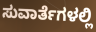
ಸುವಾರ್ತೆಗಳಲ್ಲಿ